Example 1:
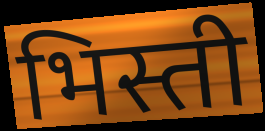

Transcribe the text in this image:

भिस्ती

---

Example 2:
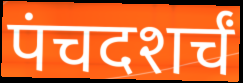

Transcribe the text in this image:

पंचदशर्चं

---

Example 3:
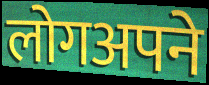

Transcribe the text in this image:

लोगअपने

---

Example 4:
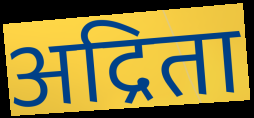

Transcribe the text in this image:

अद्रिता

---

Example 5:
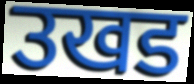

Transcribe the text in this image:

उखड